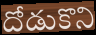
దోడుకొని